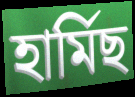
হাৰ্মিছ